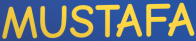
MUSTAFA